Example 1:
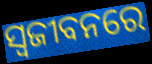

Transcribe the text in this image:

ସ୍ଵଜୀବନରେ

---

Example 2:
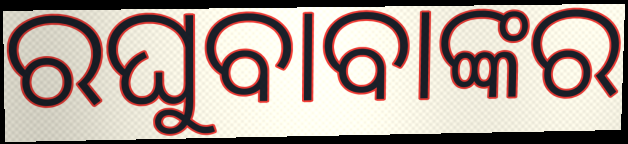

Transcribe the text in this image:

ରଘୁବାବାଙ୍କର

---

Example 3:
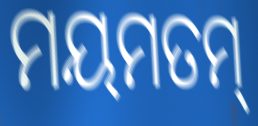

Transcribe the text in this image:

ମୟମତମ୍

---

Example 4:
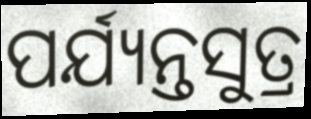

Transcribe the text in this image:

ପର୍ଯ୍ୟନ୍ତସୁତ୍ର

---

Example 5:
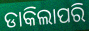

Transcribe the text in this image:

ଡାକିଲାପରି